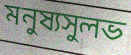
মনুষ্যসুলভ